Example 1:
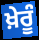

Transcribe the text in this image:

ਖ਼ੇਰੂੰ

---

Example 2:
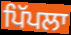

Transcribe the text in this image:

ਪਿੱਪਲਾ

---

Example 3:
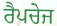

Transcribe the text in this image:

ਰੈਪਚੇਜ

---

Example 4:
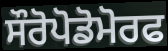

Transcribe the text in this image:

ਸੌਰੋਪੋਡੋਮੋਰਫ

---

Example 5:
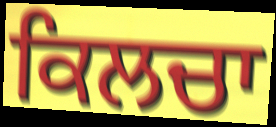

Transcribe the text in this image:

ਕਿਲਚਾ